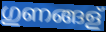
ഗുണങ്ങള്